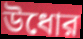
উধোর